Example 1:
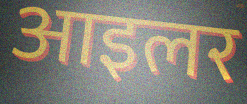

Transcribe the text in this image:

आइलर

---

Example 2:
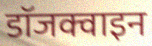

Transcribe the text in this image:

डॉजक्वाइन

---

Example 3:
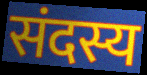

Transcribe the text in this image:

संदस्य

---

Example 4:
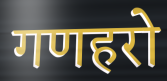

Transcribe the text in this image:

गणहरो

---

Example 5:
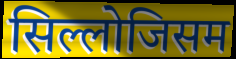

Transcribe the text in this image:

सिल्लोजिसम